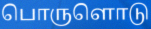
பொருளொடு